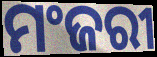
ମଂଜରୀ